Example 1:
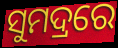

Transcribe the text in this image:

ସୁମଦ୍ରରେ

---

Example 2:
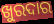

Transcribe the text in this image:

ଖୁରଦାର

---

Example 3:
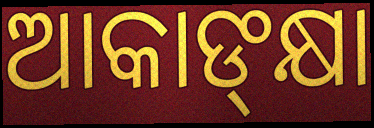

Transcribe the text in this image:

ଆକାଙ୍କ୍ଷା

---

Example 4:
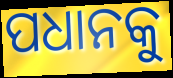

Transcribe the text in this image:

ପଧାନକୁ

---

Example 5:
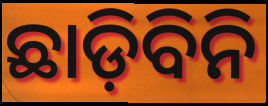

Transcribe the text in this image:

ଛାଡ଼ିବିନି